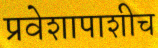
प्रवेशापाशीच